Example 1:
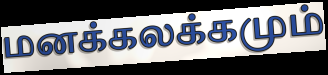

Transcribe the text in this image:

மனக்கலக்கமும்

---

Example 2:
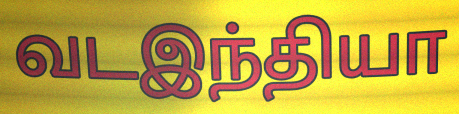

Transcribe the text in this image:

வடஇந்தியா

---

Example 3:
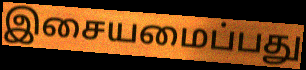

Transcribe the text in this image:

இசையமைப்பது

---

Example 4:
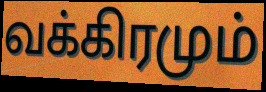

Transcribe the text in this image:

வக்கிரமும்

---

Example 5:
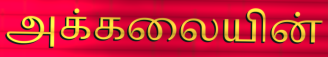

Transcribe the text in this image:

அக்கலையின்